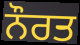
ਨੌਰਤ